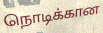
நொடிக்கான